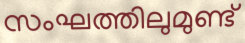
സംഘത്തിലുമുണ്ട്